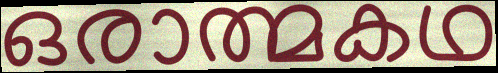
ഒരാത്മകഥ